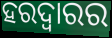
ହରଦ୍ୱାରର